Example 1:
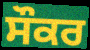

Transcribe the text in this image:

ਸੌਕਰ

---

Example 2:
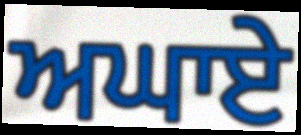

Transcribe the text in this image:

ਅਘਾਏ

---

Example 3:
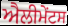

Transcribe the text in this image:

ਐਲੀਮੇੰਟਸ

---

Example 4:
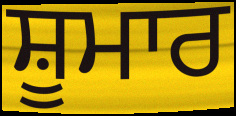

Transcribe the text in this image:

ਸ਼ੂਮਾਰ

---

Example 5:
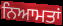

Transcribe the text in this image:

ਨਿਆਮਤਾਂ